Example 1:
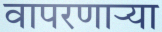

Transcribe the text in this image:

वापरणार्‍या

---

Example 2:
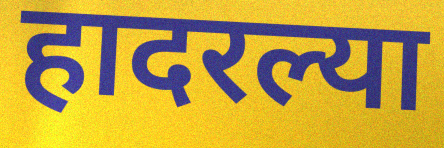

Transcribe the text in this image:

हादरल्या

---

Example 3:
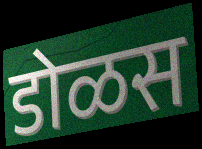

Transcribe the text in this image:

डोळस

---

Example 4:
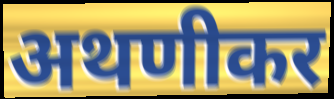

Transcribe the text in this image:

अथणीकर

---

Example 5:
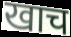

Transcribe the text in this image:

खाच